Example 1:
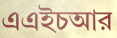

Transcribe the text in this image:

এএইচআর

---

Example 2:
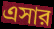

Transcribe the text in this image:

এসার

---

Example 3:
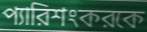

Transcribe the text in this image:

প্যারিশংকরকে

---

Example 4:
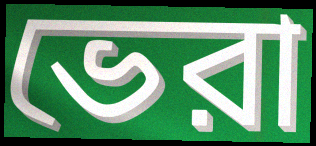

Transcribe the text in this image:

ভেরা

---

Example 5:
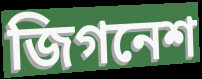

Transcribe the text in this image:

জিগনেশ